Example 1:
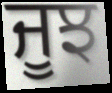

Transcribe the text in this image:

ਜੂਝ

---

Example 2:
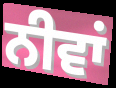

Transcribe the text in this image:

ਨੀਵਾਂ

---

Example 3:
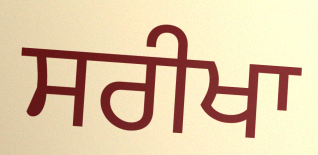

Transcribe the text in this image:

ਸਰੀਖਾ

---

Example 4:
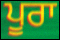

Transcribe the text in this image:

ਪੂਰਾ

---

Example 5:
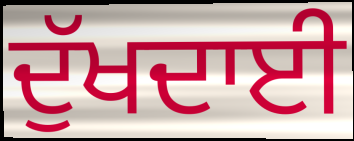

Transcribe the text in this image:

ਦੁੱਖਦਾਈ